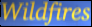
Wildfires